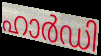
ഹാർഡി